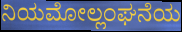
ನಿಯಮೋಲ್ಲಂಘನೆಯ